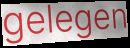
gelegen